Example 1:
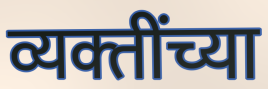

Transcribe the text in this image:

व्‍यक्‍तींच्‍या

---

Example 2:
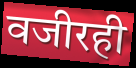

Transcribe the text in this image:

वजीरही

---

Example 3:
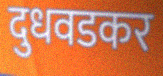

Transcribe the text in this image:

दुधवडकर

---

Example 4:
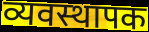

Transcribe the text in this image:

व्यवस्थापक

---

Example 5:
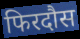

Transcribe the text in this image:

फिरदौस